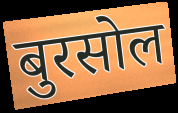
बुरसोल